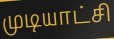
முடியாட்சி